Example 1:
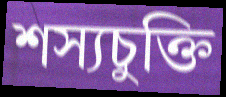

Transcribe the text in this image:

শস্যচুক্তি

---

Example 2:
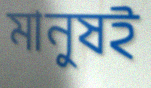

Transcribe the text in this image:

মানুষই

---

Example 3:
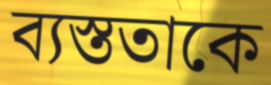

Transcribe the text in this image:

ব্যস্ততাকে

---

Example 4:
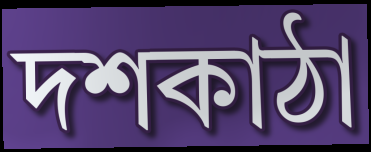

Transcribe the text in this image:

দশকাঠা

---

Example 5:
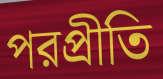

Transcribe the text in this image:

পরপ্রীতি